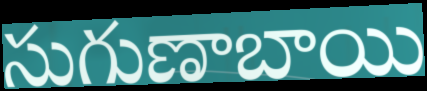
సుగుణాబాయి